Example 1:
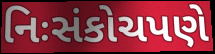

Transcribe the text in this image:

નિઃસંકોચપણે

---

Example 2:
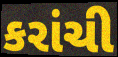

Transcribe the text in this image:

કરાંચી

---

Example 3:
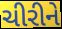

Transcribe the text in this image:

ચીરીને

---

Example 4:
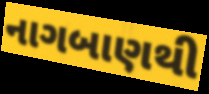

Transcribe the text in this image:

નાગબાણથી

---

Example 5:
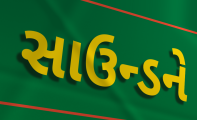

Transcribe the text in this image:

સાઉન્ડને